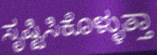
ಸೃಷ್ಟಿಸಿಕೊಳ್ಳುತ್ತಾ